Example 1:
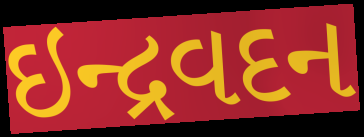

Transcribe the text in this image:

ઇન્દ્રવદન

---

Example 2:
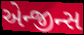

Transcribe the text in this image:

એન્જીન્સ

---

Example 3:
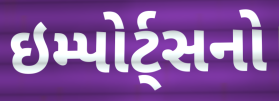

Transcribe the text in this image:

ઇમ્પોર્ટ્સનો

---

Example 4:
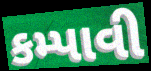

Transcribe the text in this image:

કમ્પાવી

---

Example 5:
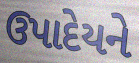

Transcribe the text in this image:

ઉપાદેયને